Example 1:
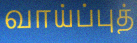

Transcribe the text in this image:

வாய்ப்புத்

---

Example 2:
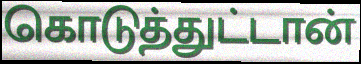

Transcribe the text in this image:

கொடுத்துட்டான்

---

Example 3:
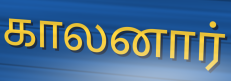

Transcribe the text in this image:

காலனார்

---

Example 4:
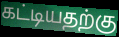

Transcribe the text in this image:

கட்டியதற்கு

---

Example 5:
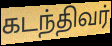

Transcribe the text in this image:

கடந்திவர்